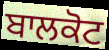
ਬਾਲਕੋਟ